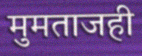
मुमताजही